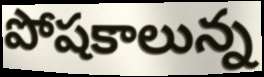
పోషకాలున్న